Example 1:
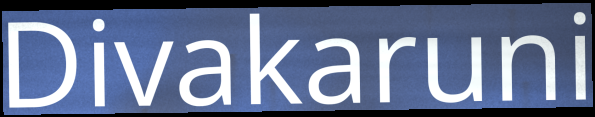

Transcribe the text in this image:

Divakaruni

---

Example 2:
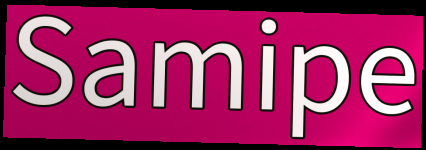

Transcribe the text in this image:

Samipe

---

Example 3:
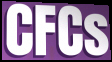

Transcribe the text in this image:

CFCs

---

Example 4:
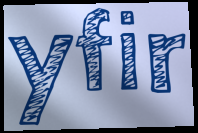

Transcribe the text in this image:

yfir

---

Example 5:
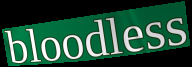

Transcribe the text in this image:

bloodless